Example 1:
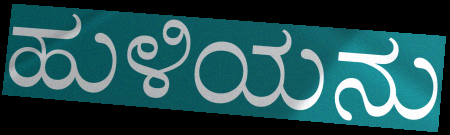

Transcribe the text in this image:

ಹುಳಿಯನು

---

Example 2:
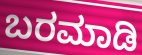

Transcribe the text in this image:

ಬರಮಾಡಿ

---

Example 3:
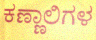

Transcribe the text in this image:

ಕಣ್ಣಾಲಿಗಳ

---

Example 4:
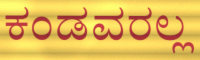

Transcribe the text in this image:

ಕಂಡವರಲ್ಲ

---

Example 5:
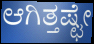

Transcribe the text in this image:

ಆಗಿತ್ತಷ್ಟೇ